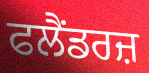
ਫਲੈਂਡਰਜ਼